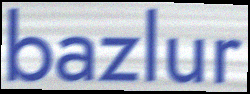
bazlur